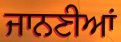
ਜਾਨਣੀਆਂ